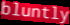
bluntly